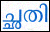
ച്ഛതി